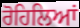
ਰੋਹਿਲਿਆਂ